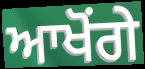
ਆਖੋਂਗੇ